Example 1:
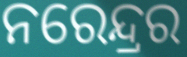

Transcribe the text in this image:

ନରେନ୍ଦ୍ରର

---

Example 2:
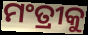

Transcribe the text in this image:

ମଂତ୍ରୀକୁ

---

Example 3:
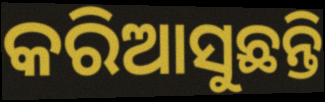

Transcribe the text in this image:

କରିଆସୁଛନ୍ତି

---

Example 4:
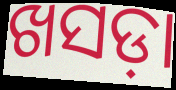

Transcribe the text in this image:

ଖସଡ଼ା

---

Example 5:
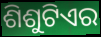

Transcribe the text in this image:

ଶିଶୁଟିଏର